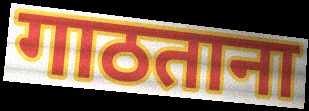
गाठताना